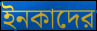
ইনকাদের